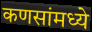
कणसांमध्ये